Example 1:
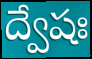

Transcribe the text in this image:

ద్వేషః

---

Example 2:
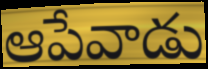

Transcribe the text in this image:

ఆపేవాడు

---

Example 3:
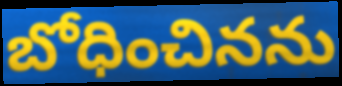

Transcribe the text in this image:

బోధించినను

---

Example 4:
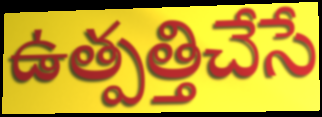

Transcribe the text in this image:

ఉత్పత్తిచేసే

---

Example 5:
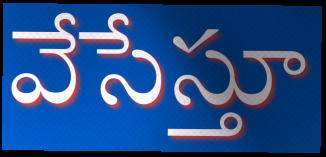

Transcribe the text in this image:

వేసేస్తూ